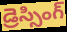
డ్రెస్సింగ్